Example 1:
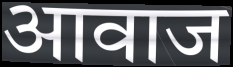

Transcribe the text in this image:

आवाज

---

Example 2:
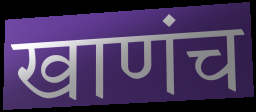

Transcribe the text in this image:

खाणंच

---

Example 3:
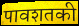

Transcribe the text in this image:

पावशतकी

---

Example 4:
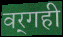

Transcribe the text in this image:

वर्गही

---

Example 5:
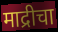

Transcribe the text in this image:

माद्रीचा